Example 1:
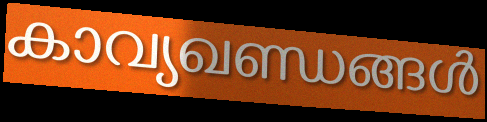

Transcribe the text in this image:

കാവ്യഖണ്ഡങ്ങൾ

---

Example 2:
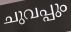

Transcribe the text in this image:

ചുവപ്പും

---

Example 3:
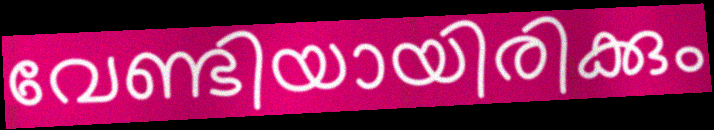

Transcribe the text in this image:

വേണ്ടിയായിരിക്കും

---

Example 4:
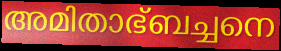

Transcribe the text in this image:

അമിതാഭ്ബച്ചനെ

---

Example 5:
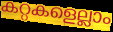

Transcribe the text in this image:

കറ്റകളെല്ലാം